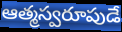
ఆత్మస్వరూపుడే